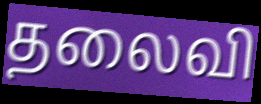
தலைவி